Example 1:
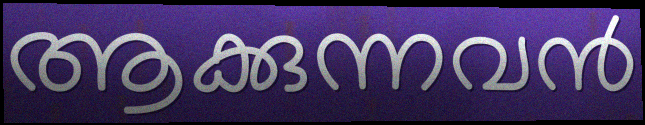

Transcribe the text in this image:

ആക്കുന്നവൻ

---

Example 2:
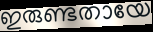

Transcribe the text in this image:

ഇരുണ്ടതായേ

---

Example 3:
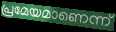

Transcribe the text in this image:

പ്രമേയമാണെന്ന്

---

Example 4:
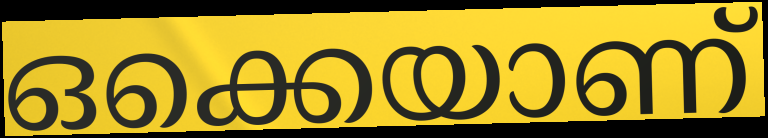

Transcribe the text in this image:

ഒക്കെയാണ്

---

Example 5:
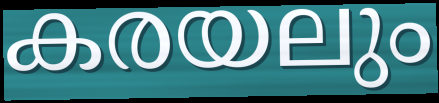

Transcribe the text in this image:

കരയലും